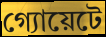
গ্যোয়েটে